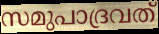
സമുപാദ്രവത്